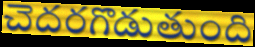
చెదరగొడుతుంది